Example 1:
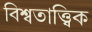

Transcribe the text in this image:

বিশ্বতাত্ত্বিক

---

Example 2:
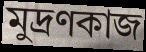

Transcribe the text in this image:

মুদ্রণকাজ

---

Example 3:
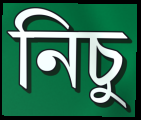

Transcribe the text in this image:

নিচু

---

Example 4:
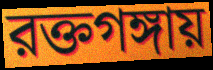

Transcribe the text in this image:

রক্তগঙ্গায়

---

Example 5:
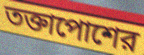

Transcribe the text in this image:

তক্তাপোশের